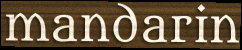
mandarin